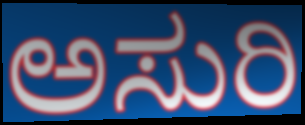
ಅಸುರಿ